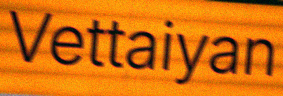
Vettaiyan